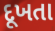
દૂખતા